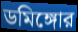
ডমিঙ্গোর